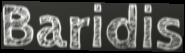
Baridis